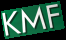
KMF